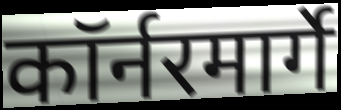
कॉर्नरमार्गे